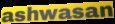
ashwasan